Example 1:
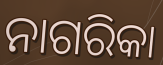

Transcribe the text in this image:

ନାଗରିକା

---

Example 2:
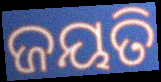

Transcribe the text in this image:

ଜୟତି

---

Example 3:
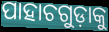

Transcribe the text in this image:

ପାହାଚଗୁଡ଼ାକୁ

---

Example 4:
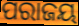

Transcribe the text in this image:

ପରାଜୟ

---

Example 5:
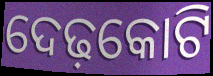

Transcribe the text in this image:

ଦେଢ଼କୋଟି